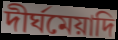
দীর্ঘমেয়াদি